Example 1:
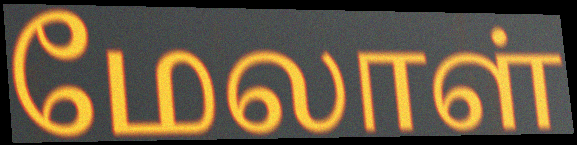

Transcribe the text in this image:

மேலாள்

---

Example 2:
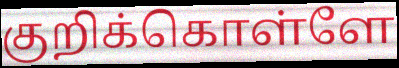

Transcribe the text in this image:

குறிக்கொள்ளே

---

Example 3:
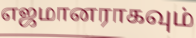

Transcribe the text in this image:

எஜமானராகவும்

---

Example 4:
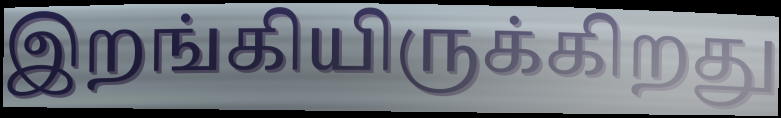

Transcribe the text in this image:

இறங்கியிருக்கிறது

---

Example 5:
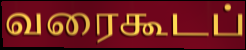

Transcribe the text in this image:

வரைகூடப்